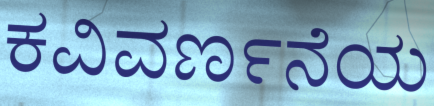
ಕವಿವರ್ಣನೆಯ